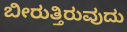
ಬೀರುತ್ತಿರುವುದು